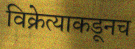
विक्रेत्याकडूनच